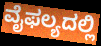
ವೈಫಲ್ಯದಲ್ಲಿ